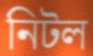
নিটল